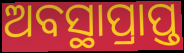
ଅବସ୍ଥାପ୍ରାପ୍ତ